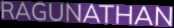
RAGUNATHAN